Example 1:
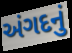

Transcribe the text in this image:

અંગદનું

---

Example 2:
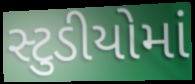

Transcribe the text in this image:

સ્ટુડીયોમાં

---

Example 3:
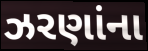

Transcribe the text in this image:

ઝરણાંના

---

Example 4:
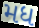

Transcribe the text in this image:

મધ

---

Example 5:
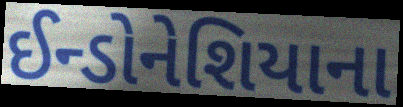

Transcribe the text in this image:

ઈન્ડોનેશિયાના